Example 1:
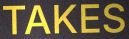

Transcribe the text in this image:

TAKES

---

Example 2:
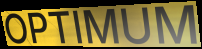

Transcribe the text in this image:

OPTIMUM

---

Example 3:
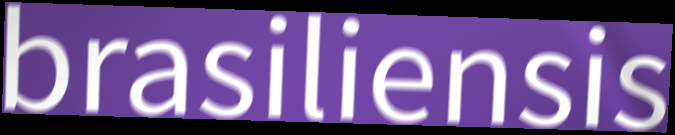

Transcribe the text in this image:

brasiliensis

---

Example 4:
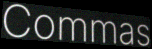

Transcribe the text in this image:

Commas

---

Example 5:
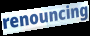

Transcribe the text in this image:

renouncing